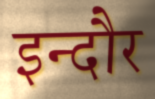
इन्दौर